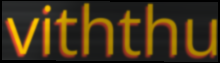
viththu